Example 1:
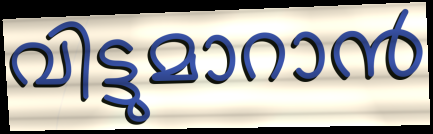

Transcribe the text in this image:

വിട്ടുമാറാൻ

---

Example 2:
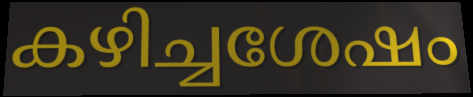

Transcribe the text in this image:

കഴിച്ചശേഷം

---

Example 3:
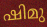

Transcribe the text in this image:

ഷിമു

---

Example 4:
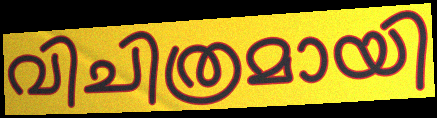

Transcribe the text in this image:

വിചിത്രമായി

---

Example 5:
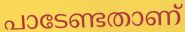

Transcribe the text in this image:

പാടേണ്ടതാണ്